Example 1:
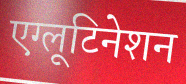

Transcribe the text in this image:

एग्लूटिनेशन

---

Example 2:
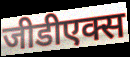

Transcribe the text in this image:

जीडीएक्स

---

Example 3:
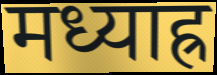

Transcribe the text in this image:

मध्याह्र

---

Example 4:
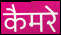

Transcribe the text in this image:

कैमरे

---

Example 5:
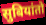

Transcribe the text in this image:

सुबियांतो